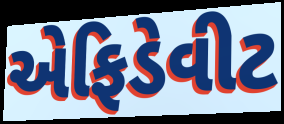
એફિડેવીટ